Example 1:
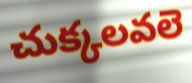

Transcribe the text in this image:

చుక్కలవలె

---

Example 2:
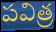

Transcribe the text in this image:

పవిత్ర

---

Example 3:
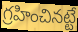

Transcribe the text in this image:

గ్రహించినట్టే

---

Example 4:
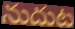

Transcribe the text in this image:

నుదుట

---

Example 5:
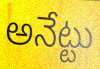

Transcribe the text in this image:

అనేట్టు